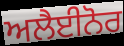
ਅਲੈਈਨੋਰ